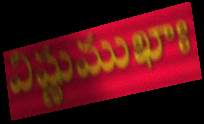
విష్ణుముఖాః